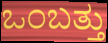
ಒಂಬತ್ತು